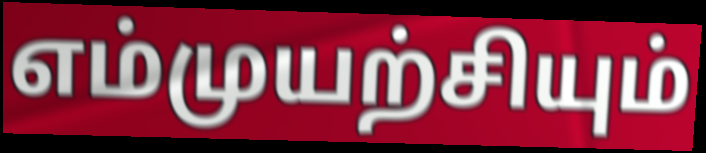
எம்முயற்சியும்